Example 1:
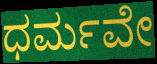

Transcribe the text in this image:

ಧರ್ಮವೇ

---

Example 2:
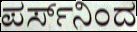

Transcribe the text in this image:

ಪರ್ಸ್‌ನಿಂದ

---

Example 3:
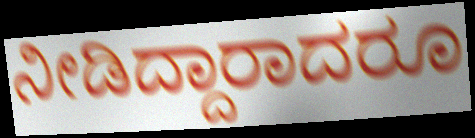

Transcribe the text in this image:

ನೀಡಿದ್ದಾರಾದರೂ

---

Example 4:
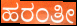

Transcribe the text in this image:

ಹರಂತೀ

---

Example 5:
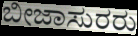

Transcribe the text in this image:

ಬೀಜಾಸುರರು